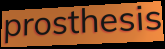
prosthesis